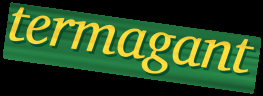
termagant